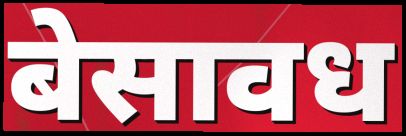
बेसावध